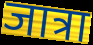
जात्रा